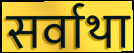
सर्वाथा